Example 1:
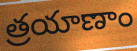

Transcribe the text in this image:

త్రయాణాం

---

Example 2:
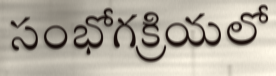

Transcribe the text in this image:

సంభోగక్రియలో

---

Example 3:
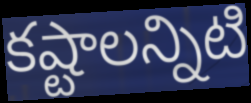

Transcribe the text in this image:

కష్టాలన్నిటి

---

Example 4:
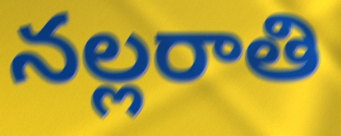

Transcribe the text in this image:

నల్లరాతి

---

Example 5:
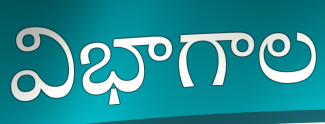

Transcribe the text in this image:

విభాగాల